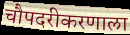
चौपदरीकरणाला